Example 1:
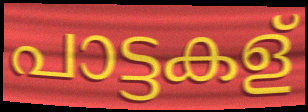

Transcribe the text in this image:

പാട്ടകള്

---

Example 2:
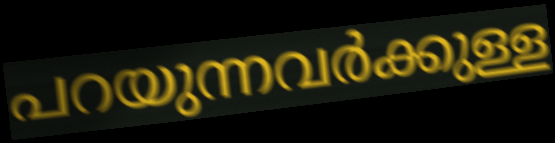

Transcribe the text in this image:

പറയുന്നവർക്കുള്ള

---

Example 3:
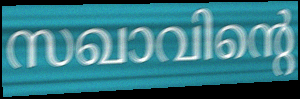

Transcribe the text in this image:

സഖാവിന്റെ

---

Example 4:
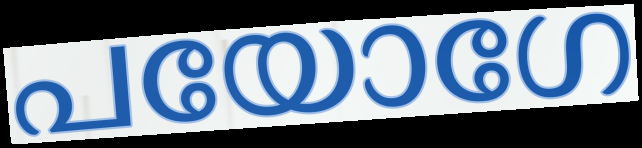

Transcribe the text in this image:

പയോഗേ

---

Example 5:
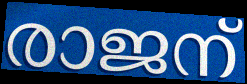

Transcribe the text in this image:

രാജന്